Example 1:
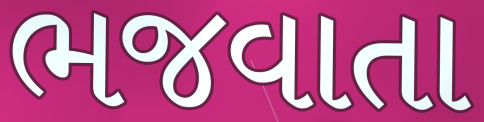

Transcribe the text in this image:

ભજવાતા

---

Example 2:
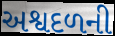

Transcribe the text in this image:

અશ્વદળની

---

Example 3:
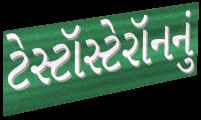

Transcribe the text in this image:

ટેસ્ટૉસ્ટેરૉનનું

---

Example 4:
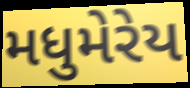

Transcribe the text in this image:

મધુમેરેય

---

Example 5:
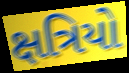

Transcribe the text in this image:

ક્ષત્રિયો